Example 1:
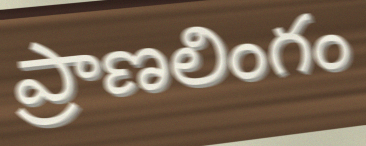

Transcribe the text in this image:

ప్రాణలింగం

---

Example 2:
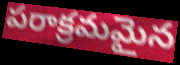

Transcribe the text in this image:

పరాక్రమమైన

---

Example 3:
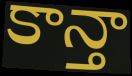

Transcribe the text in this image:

కాన్తా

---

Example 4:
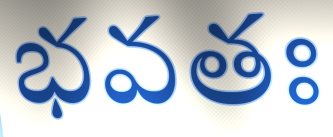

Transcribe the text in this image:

భవతః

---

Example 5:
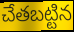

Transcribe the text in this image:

చేతబట్టిన